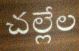
చల్లేల